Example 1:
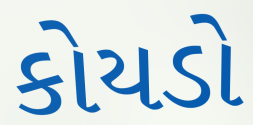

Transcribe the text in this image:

કોયડો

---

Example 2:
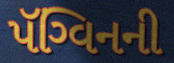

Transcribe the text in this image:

પૅંગ્વિનની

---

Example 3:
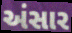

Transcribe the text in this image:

અંસાર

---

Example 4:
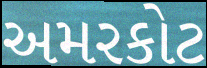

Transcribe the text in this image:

અમરકોટ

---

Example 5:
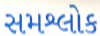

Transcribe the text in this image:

સમશ્લોક